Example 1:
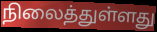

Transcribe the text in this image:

நிலைத்துள்ளது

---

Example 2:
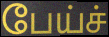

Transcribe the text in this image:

பேய்ச்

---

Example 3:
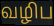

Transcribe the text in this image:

வழிப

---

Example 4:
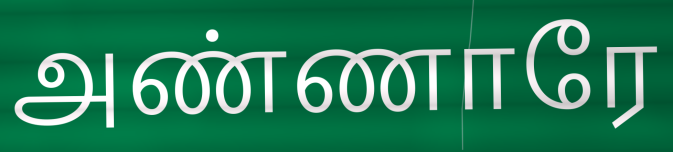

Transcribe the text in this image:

அண்ணாரே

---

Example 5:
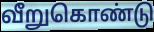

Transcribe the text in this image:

வீறுகொண்டு